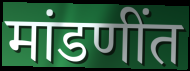
मांडणींत